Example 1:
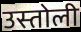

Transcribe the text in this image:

उस्तोली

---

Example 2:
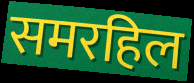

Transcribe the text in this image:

समरहिल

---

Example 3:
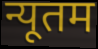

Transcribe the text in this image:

न्यूतम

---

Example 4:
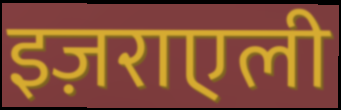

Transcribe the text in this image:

इज़राएली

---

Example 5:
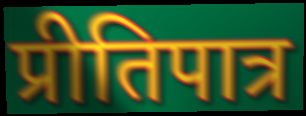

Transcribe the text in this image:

प्रीतिपात्र